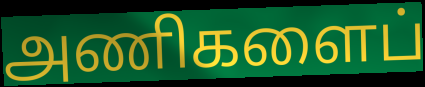
அணிகளைப்